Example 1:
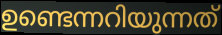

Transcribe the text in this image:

ഉണ്ടെന്നറിയുന്നത്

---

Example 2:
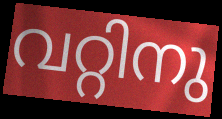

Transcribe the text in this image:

വറ്റിനു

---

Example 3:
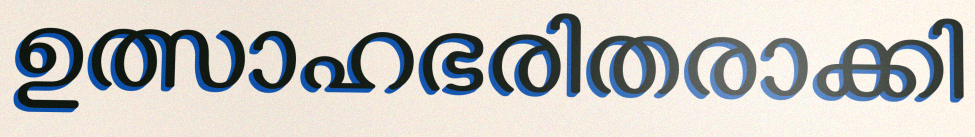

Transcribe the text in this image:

ഉത്സാഹഭരിതരാക്കി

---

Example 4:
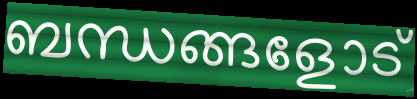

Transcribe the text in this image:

ബന്ധങ്ങളോട്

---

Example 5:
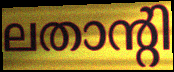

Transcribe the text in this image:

ലതാന്റി